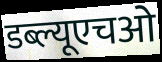
डब्ल्यूएचओ